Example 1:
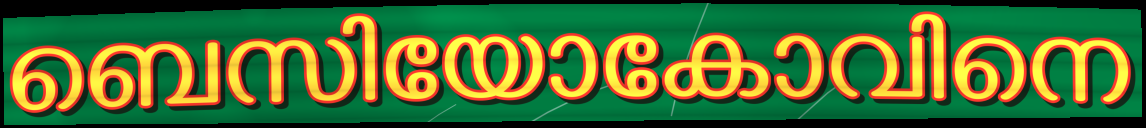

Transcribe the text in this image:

ബെസിയോകോവിനെ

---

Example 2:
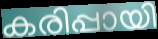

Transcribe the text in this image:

കരിപ്പായി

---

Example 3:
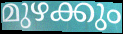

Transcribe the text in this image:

മുഴക്കും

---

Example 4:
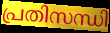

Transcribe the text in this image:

പ്രതിസന്ധി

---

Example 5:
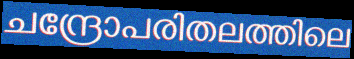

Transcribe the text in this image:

ചന്ദ്രോപരിതലത്തിലെ